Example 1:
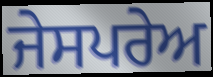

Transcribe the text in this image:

ਜੇਸਪਰੇਅ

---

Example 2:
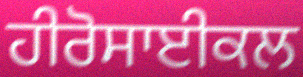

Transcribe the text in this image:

ਹੀਰੋਸਾਈਕਲ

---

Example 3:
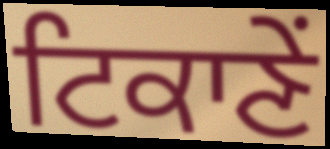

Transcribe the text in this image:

ਟਿਕਾਣੇਂ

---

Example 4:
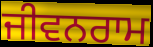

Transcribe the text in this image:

ਜੀਵਨਰਾਮ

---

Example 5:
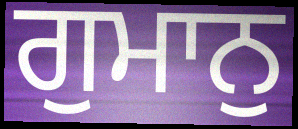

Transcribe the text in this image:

ਗੁਮਾਨੁ